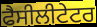
ਫੈਸੀਲੀਟੇਟਰ